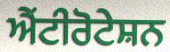
ਐਂਟੀਰੋਟੇਸ਼ਨ